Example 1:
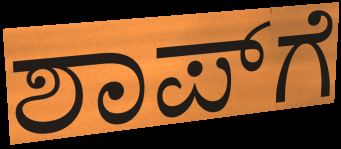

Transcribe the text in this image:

ಶಾಪ್‌ಗೆ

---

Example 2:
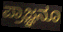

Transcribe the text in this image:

ಪ್ರಾಜ್ಞನೂ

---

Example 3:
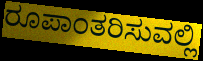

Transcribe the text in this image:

ರೂಪಾಂತರಿಸುವಲ್ಲಿ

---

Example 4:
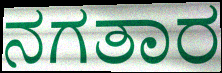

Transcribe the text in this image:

ನಗತಾರ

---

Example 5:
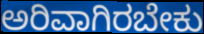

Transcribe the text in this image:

ಅರಿವಾಗಿರಬೇಕು